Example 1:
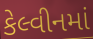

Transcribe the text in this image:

કેલ્વીનમાં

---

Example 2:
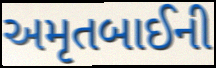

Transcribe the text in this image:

અમૃતબાઈની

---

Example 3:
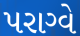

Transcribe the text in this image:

પરાગ્વે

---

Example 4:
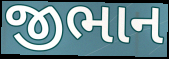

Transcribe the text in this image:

જીભાન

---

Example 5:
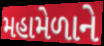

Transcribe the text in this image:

મહામેળાને